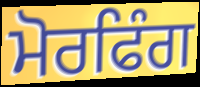
ਮੋਰਫਿੰਗ